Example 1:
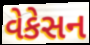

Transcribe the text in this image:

વેકેસન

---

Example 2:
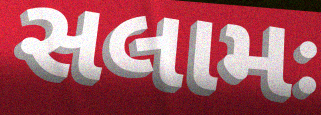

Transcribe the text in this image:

સલામઃ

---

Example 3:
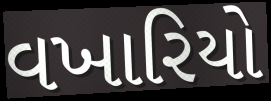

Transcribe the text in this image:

વખારિયો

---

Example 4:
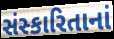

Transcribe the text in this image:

સંસ્કારિતાનાં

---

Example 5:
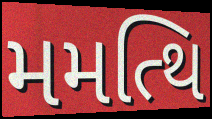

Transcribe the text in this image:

મમત્થિ